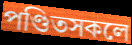
পণ্ডিতসকলে